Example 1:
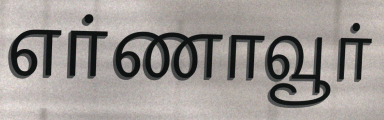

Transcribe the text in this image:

எர்ணாவூர்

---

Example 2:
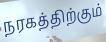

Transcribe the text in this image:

நரகத்திற்கும்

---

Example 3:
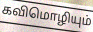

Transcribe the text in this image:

கவிமொழியும்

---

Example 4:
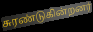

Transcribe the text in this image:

சுரண்டுகின்றனர்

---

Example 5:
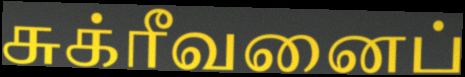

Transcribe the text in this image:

சுக்ரீவனைப்